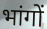
भांगों